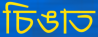
চিঙাত